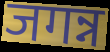
जगन्न